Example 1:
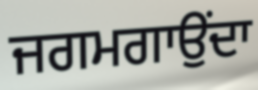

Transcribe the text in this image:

ਜਗਮਗਾਉਂਦਾ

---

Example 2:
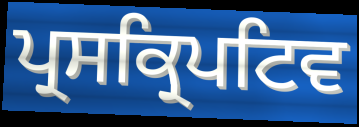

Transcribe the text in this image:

ਪ੍ਰਸਕ੍ਰਿਪਟਿਵ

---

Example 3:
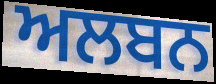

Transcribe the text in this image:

ਅਲਬਨ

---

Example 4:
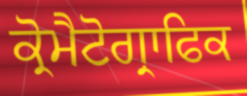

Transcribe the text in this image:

ਕ੍ਰੋਮੈਟੋਗ੍ਰਾਫਿਕ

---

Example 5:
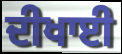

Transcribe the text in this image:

ਦੀਖਾਈ